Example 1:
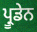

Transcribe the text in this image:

ਪ੍ਰੂਡੇਨ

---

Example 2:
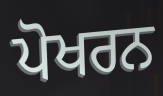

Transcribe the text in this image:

ਪੋਖਰਨ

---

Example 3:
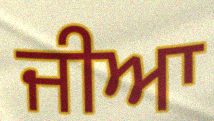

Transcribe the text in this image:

ਜੀਆ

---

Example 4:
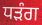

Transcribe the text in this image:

ਧੜੰਗ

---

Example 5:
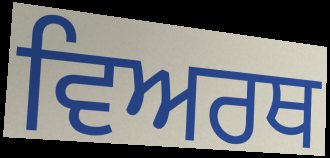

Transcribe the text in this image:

ਵਿਅਰਥ